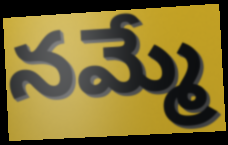
నమ్మే